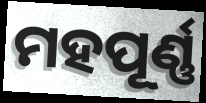
ମହପୂର୍ଣ୍ଣ